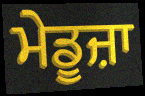
ਮੇਡੂਜ਼ਾ